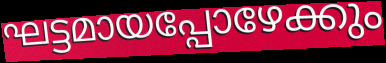
ഘട്ടമായപ്പോഴേക്കും